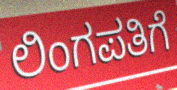
ಲಿಂಗಪತಿಗೆ